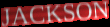
JACKSON